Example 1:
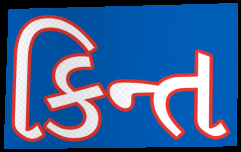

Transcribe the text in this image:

કિન્ત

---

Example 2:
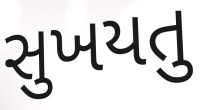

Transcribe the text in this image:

સુખયતુ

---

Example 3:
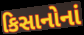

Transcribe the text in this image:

કિસાનોનાં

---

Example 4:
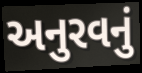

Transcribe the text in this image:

અનુરવનું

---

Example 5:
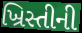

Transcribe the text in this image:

ખ્રિસ્તીની